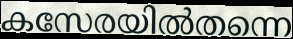
കസേരയിൽതന്നെ